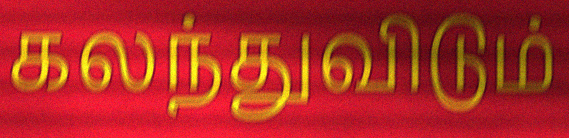
கலந்துவிடும்